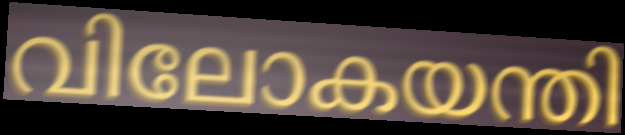
വിലോകയന്തി